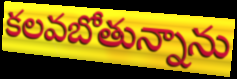
కలవబోతున్నాను